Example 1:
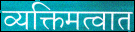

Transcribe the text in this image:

व्यक्तिमत्वात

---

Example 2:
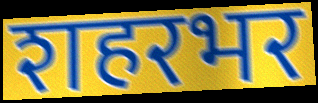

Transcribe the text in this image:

शहरभर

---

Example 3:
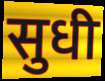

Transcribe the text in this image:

सुधी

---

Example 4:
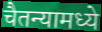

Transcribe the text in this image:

चैतन्यामध्ये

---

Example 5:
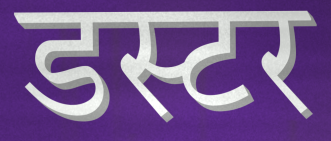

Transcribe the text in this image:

डस्टर